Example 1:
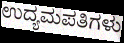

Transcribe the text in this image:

ಉದ್ಯಮಪತಿಗಳು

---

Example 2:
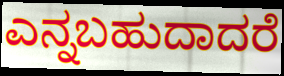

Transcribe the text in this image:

ಎನ್ನಬಹುದಾದರೆ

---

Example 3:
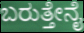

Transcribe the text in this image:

ಬರುತ್ತೇನೈ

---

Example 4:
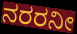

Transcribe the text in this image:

ನರರನೀ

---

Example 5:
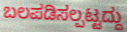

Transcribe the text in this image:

ಬಲಪಡಿಸಲ್ಪಟ್ಟದ್ದು